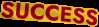
SUCCESS